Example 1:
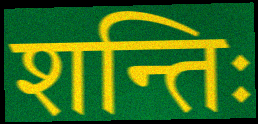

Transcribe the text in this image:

शन्तिः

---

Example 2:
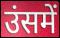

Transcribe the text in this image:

उंसमें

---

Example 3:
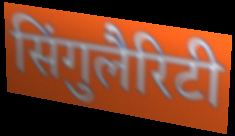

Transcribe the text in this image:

सिंगुलैरिटी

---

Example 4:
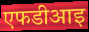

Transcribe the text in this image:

एफडीआइ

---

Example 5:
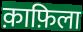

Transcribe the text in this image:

क़ाफ़िला